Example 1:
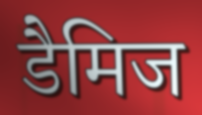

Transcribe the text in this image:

डैमिज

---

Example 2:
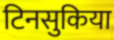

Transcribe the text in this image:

टिनसुकिया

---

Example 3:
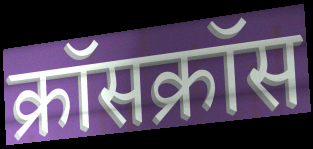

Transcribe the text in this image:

क्रॉसक्रॉस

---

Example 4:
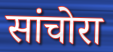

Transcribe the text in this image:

सांचोरा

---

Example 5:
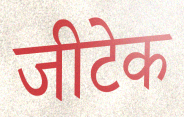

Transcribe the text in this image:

जीटेक